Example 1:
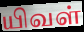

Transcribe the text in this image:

யிவள்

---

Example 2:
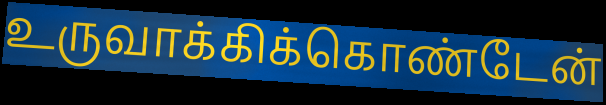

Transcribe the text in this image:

உருவாக்கிக்கொண்டேன்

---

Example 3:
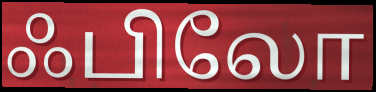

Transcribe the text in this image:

ஃபிலோ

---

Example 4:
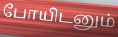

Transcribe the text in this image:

போயிடனும்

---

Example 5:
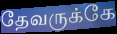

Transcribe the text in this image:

தேவருக்கே